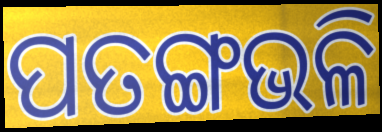
ପତଙ୍ଗଭଳି